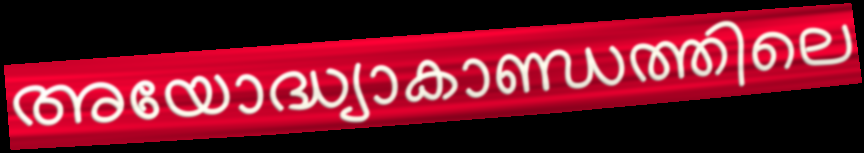
അയോദ്ധ്യാകാണ്ഡത്തിലെ